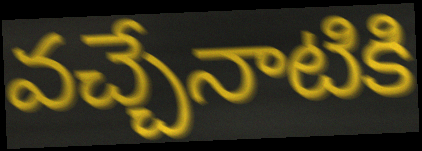
వచ్చేనాటికి